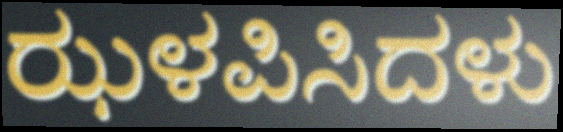
ಝಳಪಿಸಿದಳು